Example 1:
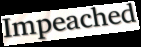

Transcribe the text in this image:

Impeached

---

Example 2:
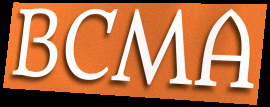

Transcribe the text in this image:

BCMA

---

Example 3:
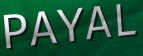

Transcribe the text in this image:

PAYAL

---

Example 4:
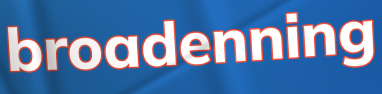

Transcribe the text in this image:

broadenning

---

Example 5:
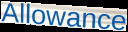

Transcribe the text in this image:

Allowance